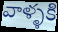
వాళ్ళకి